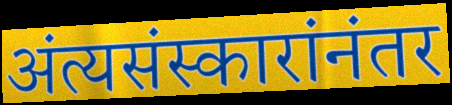
अंत्यसंस्कारांनंतर